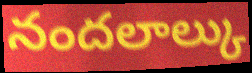
నందలాల్కు